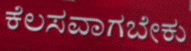
ಕೆಲಸವಾಗಬೇಕು